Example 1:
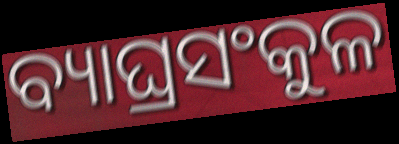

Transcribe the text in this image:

ବ୍ୟାଘ୍ରସଂକୁଳ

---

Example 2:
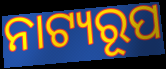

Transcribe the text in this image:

ନାଟ୍ୟରୂପ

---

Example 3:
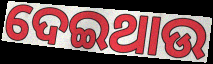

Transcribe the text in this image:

ଦେଇଥାଉ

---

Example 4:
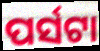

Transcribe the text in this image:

ପର୍ସଟା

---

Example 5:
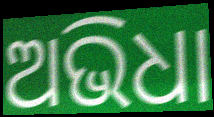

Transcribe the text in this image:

ଅଭିଧା